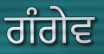
ਗੰਗੇਵ